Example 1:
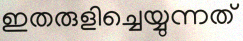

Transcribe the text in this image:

ഇതരുളിച്ചെയ്യുന്നത്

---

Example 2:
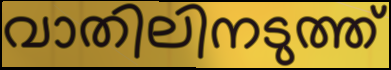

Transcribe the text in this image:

വാതിലിനടുത്ത്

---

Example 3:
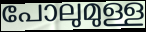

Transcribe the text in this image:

പോലുമുള്ള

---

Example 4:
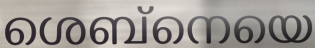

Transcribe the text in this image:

ശെബ്നെയെ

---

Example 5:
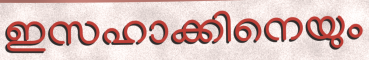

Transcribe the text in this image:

ഇസഹാക്കിനെയും